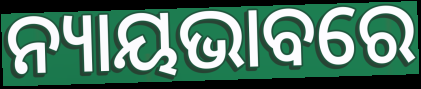
ନ୍ୟାୟଭାବରେ